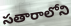
సతారాలోని